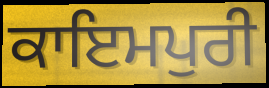
ਕਾਇਮਪੁਰੀ